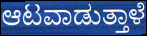
ಆಟವಾಡುತ್ತಾಳೆ